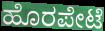
ಹೊರಪೇಟೆ